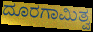
ದೂರಗಾಮಿತ್ವ